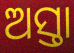
ଅସ୍ତା